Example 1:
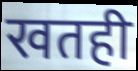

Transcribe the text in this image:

खतही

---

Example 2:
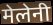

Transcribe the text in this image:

मेलेनी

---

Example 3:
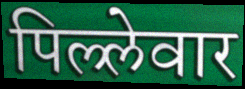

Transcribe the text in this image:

पिल्लेवार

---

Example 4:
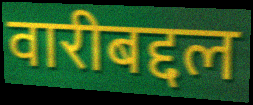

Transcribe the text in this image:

वारीबद्दल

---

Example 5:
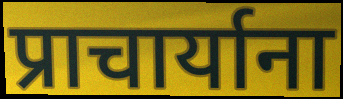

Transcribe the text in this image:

प्राचार्याना